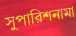
সুপারিশনামা